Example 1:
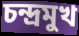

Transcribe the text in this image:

চন্দ্রমুখ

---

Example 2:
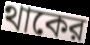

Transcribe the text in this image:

থাকের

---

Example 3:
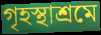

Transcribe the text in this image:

গৃহস্থাশ্রমে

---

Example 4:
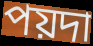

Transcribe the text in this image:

পয়দা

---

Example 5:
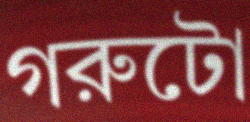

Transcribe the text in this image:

গরুটো